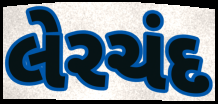
લેરચંદ